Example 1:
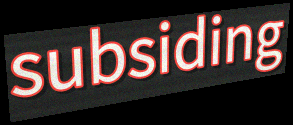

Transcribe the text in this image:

subsiding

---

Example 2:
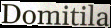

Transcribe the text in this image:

Domitila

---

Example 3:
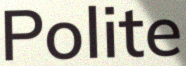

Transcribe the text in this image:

Polite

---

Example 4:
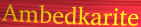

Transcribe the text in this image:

Ambedkarite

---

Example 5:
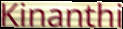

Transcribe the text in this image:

Kinanthi